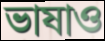
ভাষাও